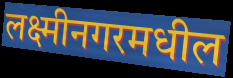
लक्ष्मीनगरमधील